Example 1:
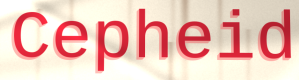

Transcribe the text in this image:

Cepheid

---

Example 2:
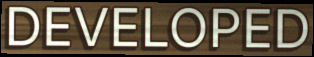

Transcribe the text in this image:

DEVELOPED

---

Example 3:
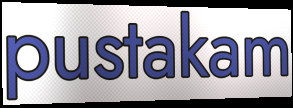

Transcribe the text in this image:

pustakam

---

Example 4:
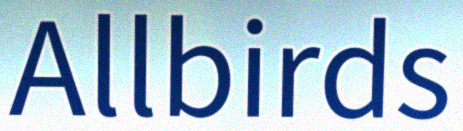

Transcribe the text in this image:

Allbirds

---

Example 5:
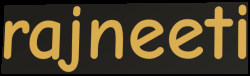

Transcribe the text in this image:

rajneeti